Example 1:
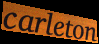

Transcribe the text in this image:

carleton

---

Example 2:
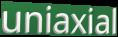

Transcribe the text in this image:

uniaxial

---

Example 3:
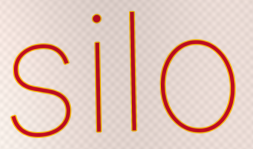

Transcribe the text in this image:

silo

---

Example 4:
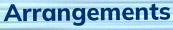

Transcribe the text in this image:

Arrangements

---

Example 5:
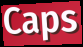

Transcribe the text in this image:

Caps